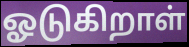
ஓடுகிறாள்